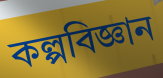
কল্পবিজ্ঞান